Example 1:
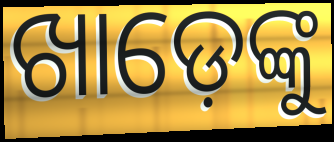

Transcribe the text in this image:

ଖାଡ଼େଙ୍କୁ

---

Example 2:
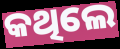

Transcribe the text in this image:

କଥିଲେ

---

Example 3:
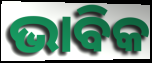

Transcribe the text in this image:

ଭାବିକ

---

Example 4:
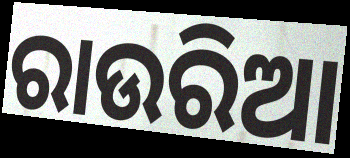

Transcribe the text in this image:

ରାଉରିଆ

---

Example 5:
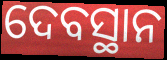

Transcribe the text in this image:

ଦେବସ୍ଥାନ